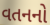
વતનનો